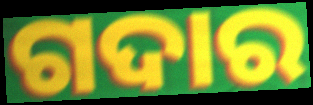
ଗଦାର